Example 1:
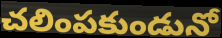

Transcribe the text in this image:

చలింపకుండునో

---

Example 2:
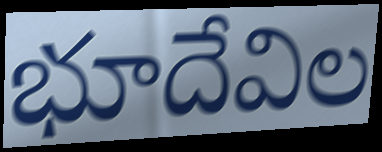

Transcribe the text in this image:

భూదేవిల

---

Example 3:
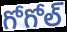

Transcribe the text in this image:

గోగోల్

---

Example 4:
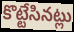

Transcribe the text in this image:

కొట్టేసినట్లు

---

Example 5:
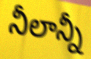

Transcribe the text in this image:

నీలాన్నీ